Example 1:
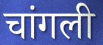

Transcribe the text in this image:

चांगली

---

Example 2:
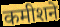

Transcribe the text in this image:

कमीशने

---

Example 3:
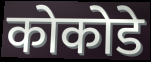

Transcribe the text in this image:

कोकोडे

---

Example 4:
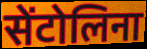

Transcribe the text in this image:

सेंटोलिना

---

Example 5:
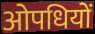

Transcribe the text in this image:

ओपधियों